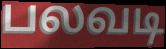
பலவடி